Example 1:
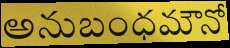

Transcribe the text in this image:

అనుబంధమౌనో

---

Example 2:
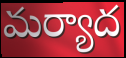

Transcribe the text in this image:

మర్యాద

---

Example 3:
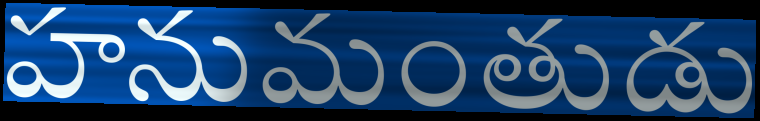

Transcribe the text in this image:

హనుమంతుడు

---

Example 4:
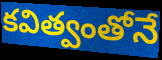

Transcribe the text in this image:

కవిత్వంతోనే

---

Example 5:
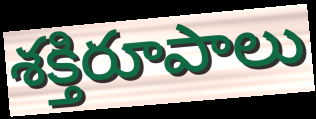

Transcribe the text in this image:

శక్తిరూపాలు